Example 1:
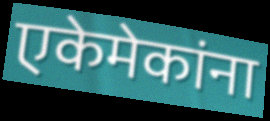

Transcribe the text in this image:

एकेमेकांना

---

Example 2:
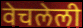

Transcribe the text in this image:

वेचलेली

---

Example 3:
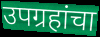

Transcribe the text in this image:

उपग्रहांचा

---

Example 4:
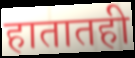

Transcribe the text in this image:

हातातही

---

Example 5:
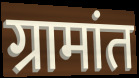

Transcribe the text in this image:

ग्रामांत